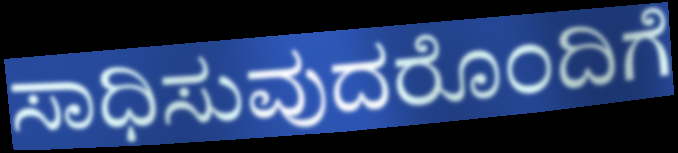
ಸಾಧಿಸುವುದರೊಂದಿಗೆ